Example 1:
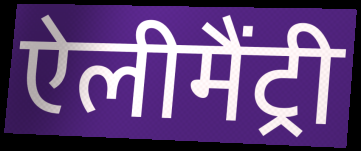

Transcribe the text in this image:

ऐलीमैंट्री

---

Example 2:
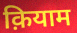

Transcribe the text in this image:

क़ियाम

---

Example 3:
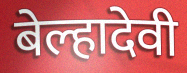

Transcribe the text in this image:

बेल्हादेवी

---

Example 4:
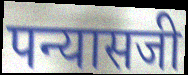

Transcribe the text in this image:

पन्यासजी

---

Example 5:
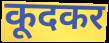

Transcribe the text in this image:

कूदकर